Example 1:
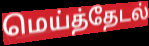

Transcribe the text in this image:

மெய்த்தேடல்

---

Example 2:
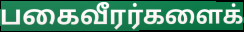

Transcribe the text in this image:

பகைவீரர்களைக்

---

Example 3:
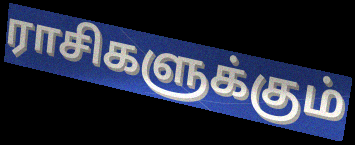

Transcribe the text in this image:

ராசிகளுக்கும்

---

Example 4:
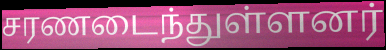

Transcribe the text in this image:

சரணடைந்துள்ளனர்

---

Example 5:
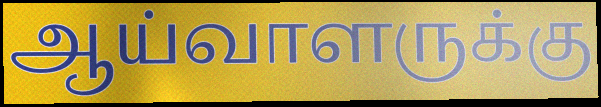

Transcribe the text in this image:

ஆய்வாளருக்கு